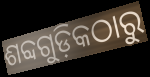
ଶବ୍ଦଗୁଡ଼ିକଠାରୁ